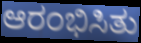
ಆರಂಭಿಸಿತು